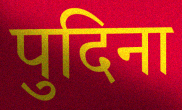
पुदिना